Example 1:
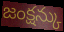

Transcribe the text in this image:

జంక్షన్కు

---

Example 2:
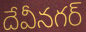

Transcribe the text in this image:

దేవీనగర్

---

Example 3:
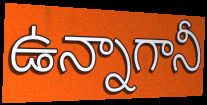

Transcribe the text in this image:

ఉన్నాగానీ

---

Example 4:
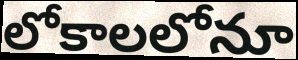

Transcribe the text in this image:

లోకాలలోనూ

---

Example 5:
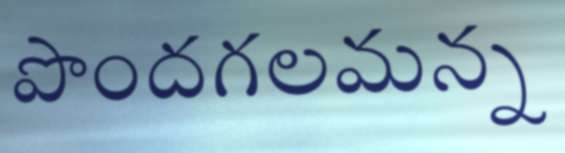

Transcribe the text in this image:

పొందగలమన్న